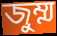
জুম্ম